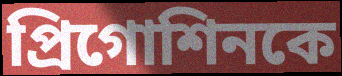
প্রিগোশিনকে